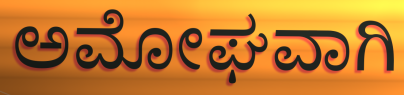
ಅಮೋಘವಾಗಿ